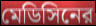
মেডিসিনের